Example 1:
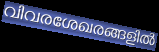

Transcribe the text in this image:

വിവരശേഖരങ്ങളിൽ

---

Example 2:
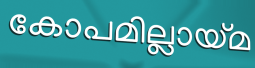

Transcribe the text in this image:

കോപമില്ലായ്മ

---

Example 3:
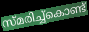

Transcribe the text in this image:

സ്മരിച്ച്കൊണ്ട്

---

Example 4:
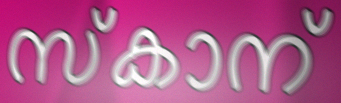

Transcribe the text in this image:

സ്കാന്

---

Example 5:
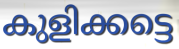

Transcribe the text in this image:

കുളിക്കട്ടെ